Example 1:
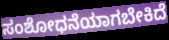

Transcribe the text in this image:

ಸಂಶೋಧನೆಯಾಗಬೇಕಿದೆ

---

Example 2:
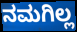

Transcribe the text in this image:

ನಮಗಿಲ್ಲ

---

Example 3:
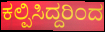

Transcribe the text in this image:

ಕಲ್ಪಿಸಿದ್ದರಿಂದ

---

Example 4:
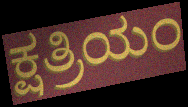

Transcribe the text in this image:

ಕ್ಷತ್ರಿಯಂ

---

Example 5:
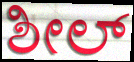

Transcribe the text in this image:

ಶೀಲ್